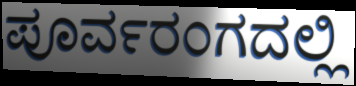
ಪೂರ್ವರಂಗದಲ್ಲಿ